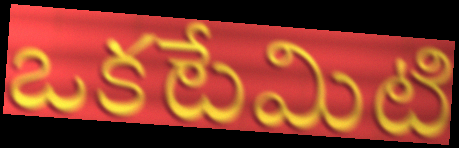
ఒకటేమిటి